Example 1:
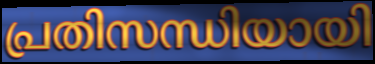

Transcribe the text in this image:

പ്രതിസന്ധിയായി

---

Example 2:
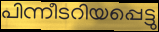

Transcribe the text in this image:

പിന്നീടറിയപ്പെട്ടു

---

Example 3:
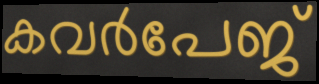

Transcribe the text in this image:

കവർപേജ്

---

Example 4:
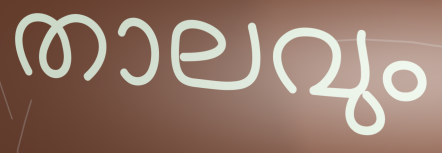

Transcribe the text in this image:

താലവും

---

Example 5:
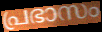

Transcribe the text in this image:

പ്രഭാസം